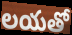
లయతో